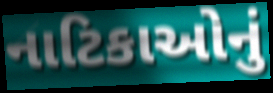
નાટિકાઓનું